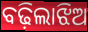
ବଢ଼ିଲାଝିଅ